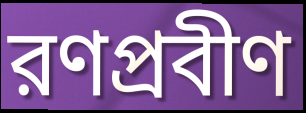
রণপ্রবীণ